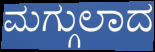
ಮಗ್ಗುಲಾದ